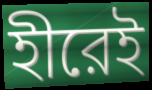
হীরেই